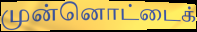
முன்னொட்டைக்